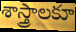
శాస్త్రాలకూ